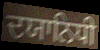
ਦਯਾਨਿਧੀ